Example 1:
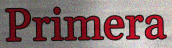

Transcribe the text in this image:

Primera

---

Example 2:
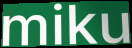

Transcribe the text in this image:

miku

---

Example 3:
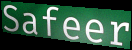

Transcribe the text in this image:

Safeer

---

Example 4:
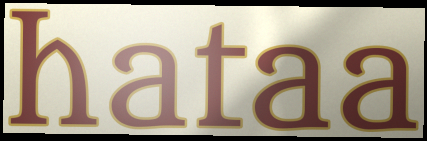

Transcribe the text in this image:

hataa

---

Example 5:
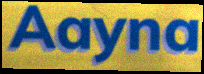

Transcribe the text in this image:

Aayna